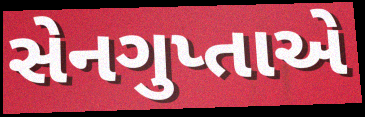
સેનગુપ્તાએ